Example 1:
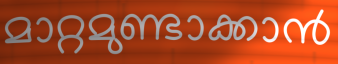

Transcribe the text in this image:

മാറ്റമുണ്ടാക്കാൻ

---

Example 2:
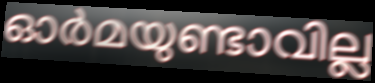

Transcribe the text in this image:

ഓർമയുണ്ടാവില്ല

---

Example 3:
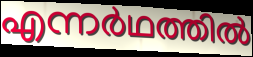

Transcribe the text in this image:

എന്നർഥത്തിൽ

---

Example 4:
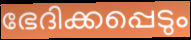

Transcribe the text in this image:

ഭേദിക്കപ്പെടും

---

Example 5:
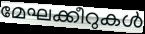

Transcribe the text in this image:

മേഘക്കീറുകൾ